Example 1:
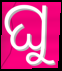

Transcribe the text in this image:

ଘୁ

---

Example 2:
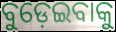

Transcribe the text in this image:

ବୁଡ଼େଇବାକୁ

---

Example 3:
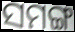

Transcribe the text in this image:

ସମଙ୍ଗ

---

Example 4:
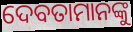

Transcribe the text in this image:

ଦେବତାମାନଙ୍କୁ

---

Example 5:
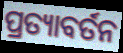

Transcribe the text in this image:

ପ୍ରତ୍ୟାବର୍ତନ